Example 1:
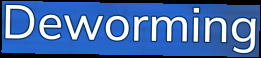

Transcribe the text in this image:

Deworming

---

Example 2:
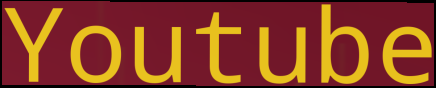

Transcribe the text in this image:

Youtube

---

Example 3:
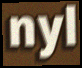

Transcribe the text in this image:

nyl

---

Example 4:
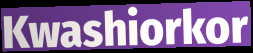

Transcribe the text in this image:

Kwashiorkor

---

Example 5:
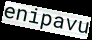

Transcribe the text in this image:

enipavu